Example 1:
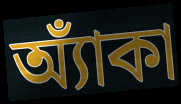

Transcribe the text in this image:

অ্যাঁকা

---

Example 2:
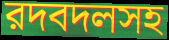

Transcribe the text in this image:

রদবদলসহ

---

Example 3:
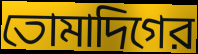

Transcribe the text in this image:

তোমাদিগের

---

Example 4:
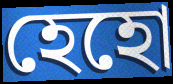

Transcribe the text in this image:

হেহো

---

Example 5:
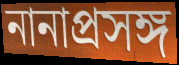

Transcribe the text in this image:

নানাপ্রসঙ্গ